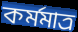
কর্মমাত্র